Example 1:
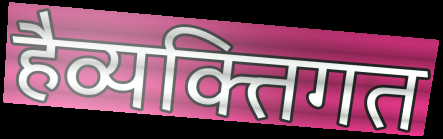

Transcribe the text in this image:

हैव्यक्तिगत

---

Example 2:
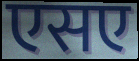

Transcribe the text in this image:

एसए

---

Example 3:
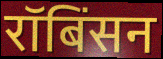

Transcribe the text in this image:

रॉबिंसन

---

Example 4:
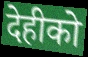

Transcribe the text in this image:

देहीको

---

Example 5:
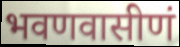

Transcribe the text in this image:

भवणवासीणं